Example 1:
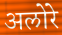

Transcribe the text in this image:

अलोरे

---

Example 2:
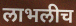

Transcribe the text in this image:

लाभलीच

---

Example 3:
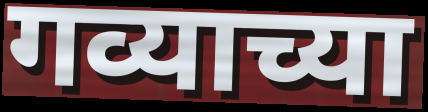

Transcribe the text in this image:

गव्याच्या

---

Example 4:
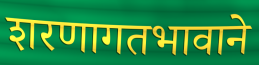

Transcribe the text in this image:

शरणागतभावाने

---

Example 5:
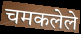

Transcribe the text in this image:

चमकलेले